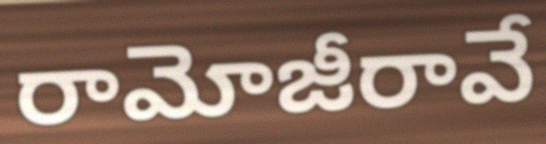
రామోజీరావే